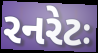
રનરેટઃ